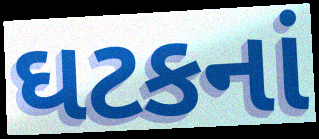
ઘટકનાં